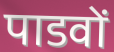
पाडवों